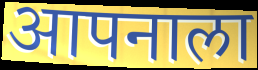
आपनाला